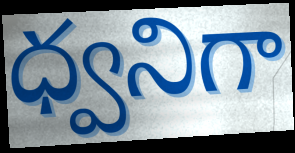
ధ్వనిగా